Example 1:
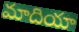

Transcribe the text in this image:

మాదియా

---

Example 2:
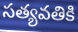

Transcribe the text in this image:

సత్యవతికి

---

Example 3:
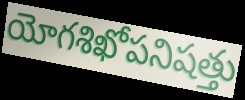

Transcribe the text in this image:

యోగశిఖోపనిషత్తు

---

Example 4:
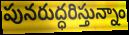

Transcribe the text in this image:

పునరుద్ధరిస్తున్నాం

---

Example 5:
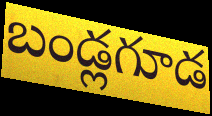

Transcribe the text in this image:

బండ్లగూడ